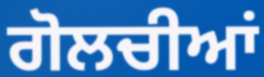
ਗੋਲਚੀਆਂ